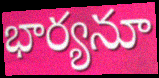
భార్యనూ